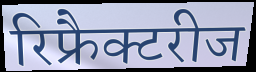
रिफ्रैक्टरीज